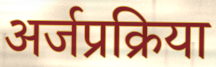
अर्जप्रक्रिया